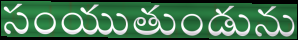
సంయుతుండును